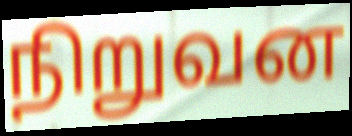
நிறுவன